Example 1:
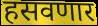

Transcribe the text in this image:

हसवणार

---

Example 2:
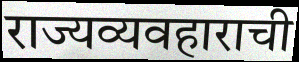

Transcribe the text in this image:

राज्यव्यवहाराची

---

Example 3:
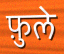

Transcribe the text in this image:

फ़ुले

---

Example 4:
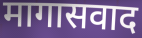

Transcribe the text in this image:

मागासवाद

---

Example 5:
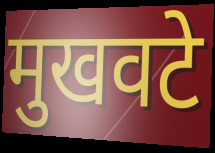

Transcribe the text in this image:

मुखवटे